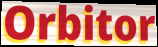
Orbitor